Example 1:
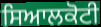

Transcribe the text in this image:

ਸਿਆਲਕੋਟੀ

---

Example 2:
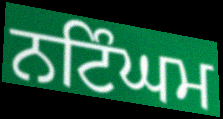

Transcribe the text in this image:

ਨਟਿੰਘਮ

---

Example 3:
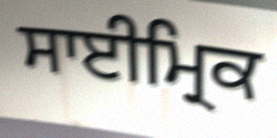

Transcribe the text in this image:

ਸਾਈਮ੍ਰਿਕ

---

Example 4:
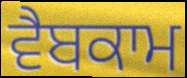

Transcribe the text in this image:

ਵੈਬਕਾਮ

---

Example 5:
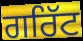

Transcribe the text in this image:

ਗਰਿੱਟ